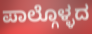
ಪಾಲ್ಗೊಳ್ಳದ